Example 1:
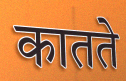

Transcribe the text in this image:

कातते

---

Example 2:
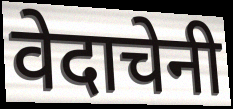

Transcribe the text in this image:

वेदाचेनी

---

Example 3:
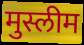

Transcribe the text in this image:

मुस्लीम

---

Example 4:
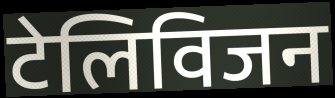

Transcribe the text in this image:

टेलिविजन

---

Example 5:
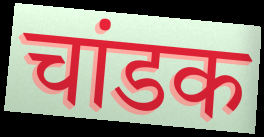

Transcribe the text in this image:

चांडक